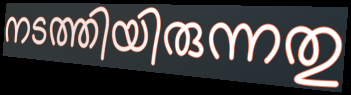
നടത്തിയിരുന്നതു